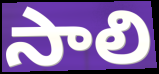
సాలి